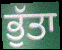
ਭੁੱਤਾ